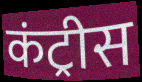
कंट्रीस